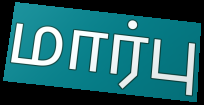
மார்பு